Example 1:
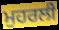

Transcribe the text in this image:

ਮੁਹਰਲੀ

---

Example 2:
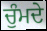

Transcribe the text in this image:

ਚੁੰਮਦੇ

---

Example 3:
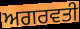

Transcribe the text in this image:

ਅਗਰਵਤੀ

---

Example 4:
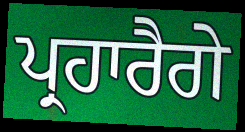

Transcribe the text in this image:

ਪ੍ਰਹਾਰੈਗੇ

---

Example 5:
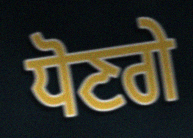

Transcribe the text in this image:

ਧੋਣਗੇ